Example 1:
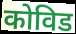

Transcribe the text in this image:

कोविड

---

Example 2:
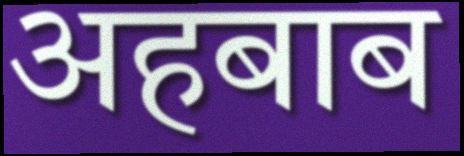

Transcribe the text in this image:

अहबाब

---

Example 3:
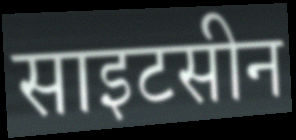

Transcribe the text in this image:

साइटसीन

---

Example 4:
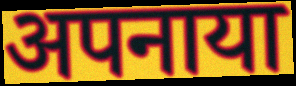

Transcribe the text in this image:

अपनाया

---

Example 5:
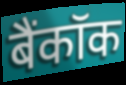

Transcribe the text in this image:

बैंकॉक